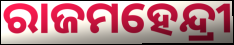
ରାଜମହେନ୍ଦ୍ରୀ